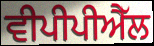
ਵੀਪੀਪੀਐੱਲ